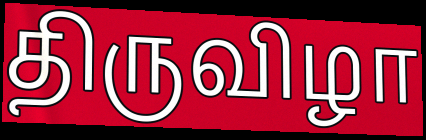
திருவிழா